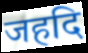
जहदि